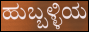
ಹುಬ್ಬಳ್ಳಿಯ